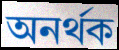
অনর্থক